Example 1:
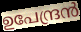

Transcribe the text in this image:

ഉപേന്ദ്രൻ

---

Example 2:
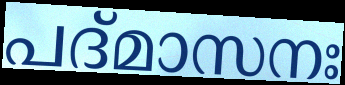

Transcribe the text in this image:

പദ്മാസനഃ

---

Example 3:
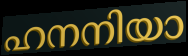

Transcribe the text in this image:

ഹനനിയാ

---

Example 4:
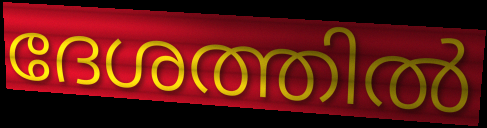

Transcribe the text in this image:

ദേശത്തിൽ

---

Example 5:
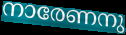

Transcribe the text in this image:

നാരേണനു